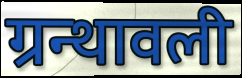
ग्रन्थावली